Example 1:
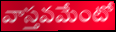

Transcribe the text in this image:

వాస్తవమేంటో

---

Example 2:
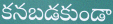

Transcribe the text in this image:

కనబడకుండా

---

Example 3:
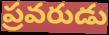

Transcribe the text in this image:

ప్రవరుడు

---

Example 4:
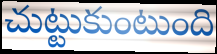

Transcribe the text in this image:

చుట్టుకుంటుంది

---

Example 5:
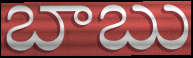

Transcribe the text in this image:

బాబు